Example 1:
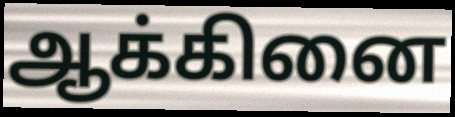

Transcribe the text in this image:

ஆக்கினை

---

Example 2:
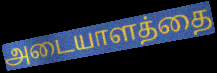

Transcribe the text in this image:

அடையாளத்தை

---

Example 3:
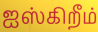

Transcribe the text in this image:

ஐஸ்கிறீம்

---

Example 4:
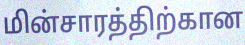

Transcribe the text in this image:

மின்சாரத்திற்கான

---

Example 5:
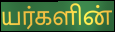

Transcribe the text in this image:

யர்களின்